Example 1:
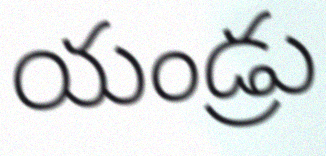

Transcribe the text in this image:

యండ్రు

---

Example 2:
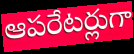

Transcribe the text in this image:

ఆపరేటర్లుగా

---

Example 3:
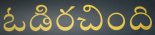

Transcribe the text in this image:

ఓడిరచింది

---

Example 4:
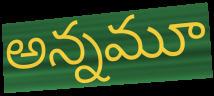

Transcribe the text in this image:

అన్నమూ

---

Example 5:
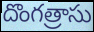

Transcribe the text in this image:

దొంగత్రాసు